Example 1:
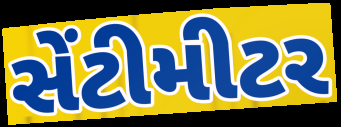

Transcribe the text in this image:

સેંટીમીટર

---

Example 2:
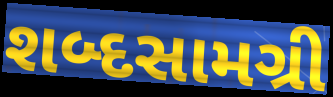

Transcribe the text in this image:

શબ્દસામગ્રી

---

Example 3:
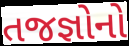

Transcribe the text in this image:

તજજ્ઞોનો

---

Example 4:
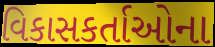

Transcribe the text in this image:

વિકાસકર્તાઓના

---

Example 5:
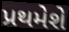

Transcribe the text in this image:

પ્રથમેશે